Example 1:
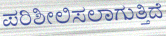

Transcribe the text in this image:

ಪರಿಶೀಲಿಸಲಾಗುತ್ತಿದೆ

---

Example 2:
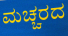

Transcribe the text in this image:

ಮಚ್ಚರದ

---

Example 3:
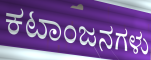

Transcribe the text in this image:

ಕಟಾಂಜನಗಳು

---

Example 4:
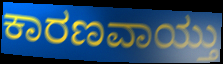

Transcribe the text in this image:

ಕಾರಣವಾಯ್ತು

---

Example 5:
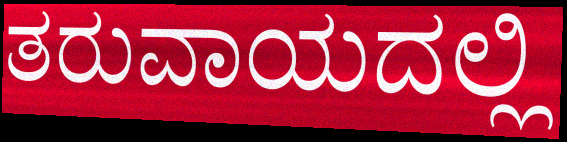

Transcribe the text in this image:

ತರುವಾಯದಲ್ಲಿ